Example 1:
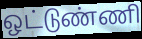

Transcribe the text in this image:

ஒட்டுண்ணி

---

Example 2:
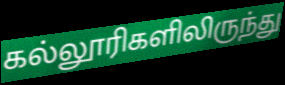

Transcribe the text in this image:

கல்லூரிகளிலிருந்து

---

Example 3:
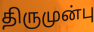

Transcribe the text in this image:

திருமுன்பு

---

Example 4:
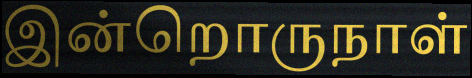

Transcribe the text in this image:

இன்றொருநாள்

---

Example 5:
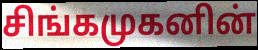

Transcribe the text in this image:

சிங்கமுகனின்